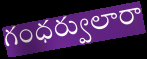
గంధర్వులారా